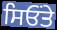
ਸਿਓਂਤੇ